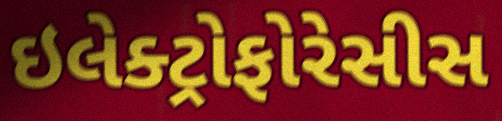
ઇલેક્ટ્રોફોરેસીસ